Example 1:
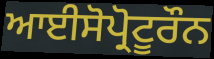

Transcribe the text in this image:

ਆਈਸੋਪ੍ਰੋਟੂਰੌਨ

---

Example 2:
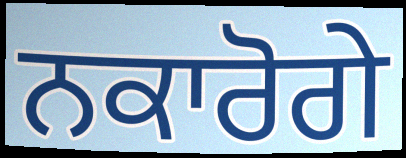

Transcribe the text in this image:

ਨਕਾਰੋਗੇ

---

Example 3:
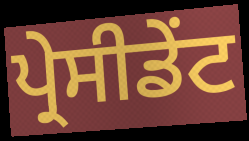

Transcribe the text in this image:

ਪ੍ਰੇਸੀਡੇਂਟ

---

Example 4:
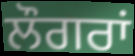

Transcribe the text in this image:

ਲੌਗਰਾਂ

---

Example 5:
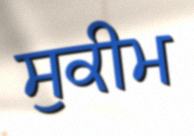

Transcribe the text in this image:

ਸੁਕੀਮ